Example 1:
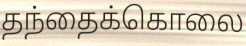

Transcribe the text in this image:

தந்தைக்கொலை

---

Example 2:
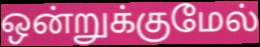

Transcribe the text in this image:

ஒன்றுக்குமேல்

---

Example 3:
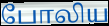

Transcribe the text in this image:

போலிய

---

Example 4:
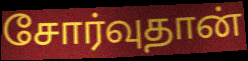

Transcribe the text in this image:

சோர்வுதான்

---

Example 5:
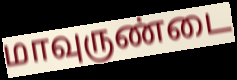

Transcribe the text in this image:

மாவுருண்டை